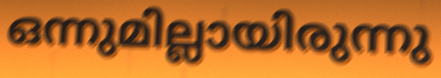
ഒന്നുമില്ലായിരുന്നു